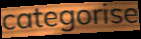
categorise